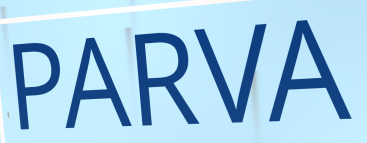
PARVA